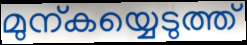
മുന്കയ്യെടുത്ത്